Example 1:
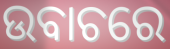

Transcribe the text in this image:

ଉବାଚରେ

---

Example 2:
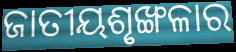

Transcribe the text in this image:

ଜାତୀୟଶୃଙ୍ଖଳାର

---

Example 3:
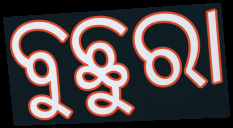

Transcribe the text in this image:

ବୁଛୁରା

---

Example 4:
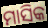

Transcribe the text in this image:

ମାସିକ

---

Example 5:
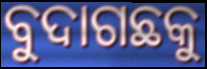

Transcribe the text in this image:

ବୁଦାଗଛକୁ